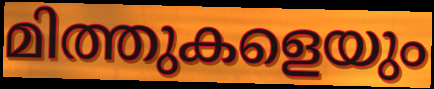
മിത്തുകളെയും